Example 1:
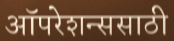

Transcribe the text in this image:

ऑपरेशन्ससाठी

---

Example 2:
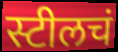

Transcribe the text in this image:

स्टीलचं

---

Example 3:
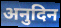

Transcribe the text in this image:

अनुदिन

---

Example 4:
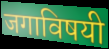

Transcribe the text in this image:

जगाविषयी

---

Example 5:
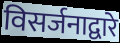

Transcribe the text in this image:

विसर्जनाद्वारे